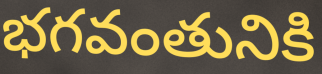
భగవంతునికి